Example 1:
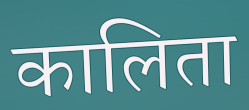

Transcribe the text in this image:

कालिता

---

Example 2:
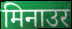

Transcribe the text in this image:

मिनाउर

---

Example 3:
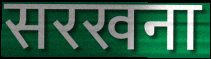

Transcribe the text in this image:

सरखना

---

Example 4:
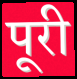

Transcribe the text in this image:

पूरी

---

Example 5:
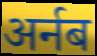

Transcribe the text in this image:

अर्नब